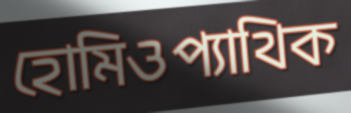
হোমিওপ্যাথিক